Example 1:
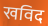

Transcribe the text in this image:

खविद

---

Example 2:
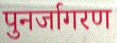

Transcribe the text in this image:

पुनर्जागरण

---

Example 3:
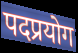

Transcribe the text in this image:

पदप्रयोग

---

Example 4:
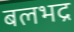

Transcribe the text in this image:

बलभद्र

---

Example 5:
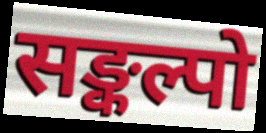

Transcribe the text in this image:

सङ्कल्पो